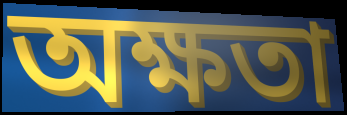
অক্ষতা